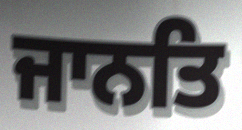
ਜਾਨਤਿ